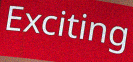
Exciting